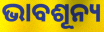
ଭାବଶୂନ୍ୟ